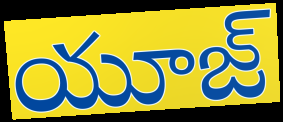
యూజ్